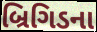
બ્રિગિડના